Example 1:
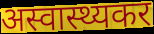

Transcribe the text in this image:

अस्वास्थ्यकर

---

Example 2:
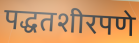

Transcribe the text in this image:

पद्धतशीरपणे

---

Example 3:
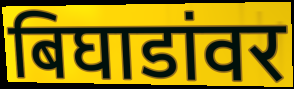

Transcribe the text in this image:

बिघाडांवर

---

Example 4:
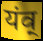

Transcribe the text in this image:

यंव्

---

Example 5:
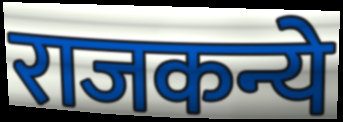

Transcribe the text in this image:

राजकन्ये